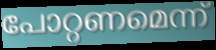
പോറ്റണമെന്ന്